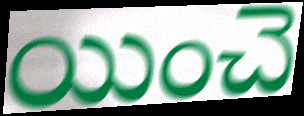
యించె